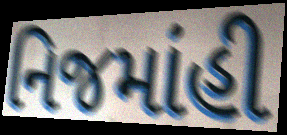
નિજમાંહી